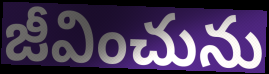
జీవించును